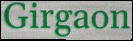
Girgaon